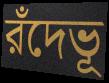
রঁদেভূ